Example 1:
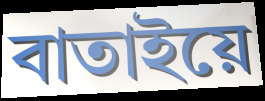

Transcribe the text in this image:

বাতাইয়ে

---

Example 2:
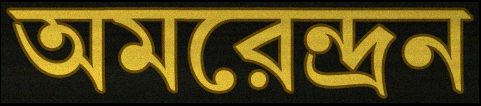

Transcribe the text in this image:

অমরেন্দ্রন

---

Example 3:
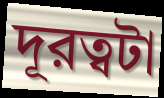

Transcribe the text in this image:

দূরত্বটা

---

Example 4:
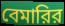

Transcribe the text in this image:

বেমারির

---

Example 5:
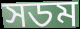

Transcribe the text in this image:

সডম